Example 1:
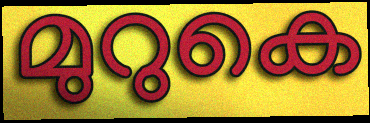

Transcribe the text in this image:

മുറുകെ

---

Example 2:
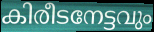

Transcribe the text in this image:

കിരീടനേട്ടവും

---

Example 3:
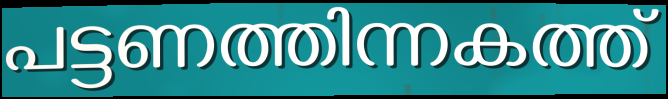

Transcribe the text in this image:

പട്ടണത്തിന്നകത്ത്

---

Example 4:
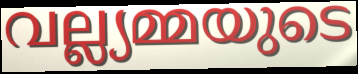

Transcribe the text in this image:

വല്ല്യമ്മയുടെ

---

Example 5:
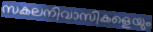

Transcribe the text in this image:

സകലനിവാസികളെയും